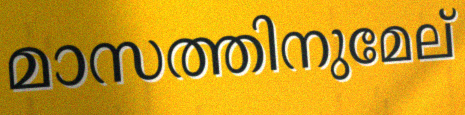
മാസത്തിനുമേല്